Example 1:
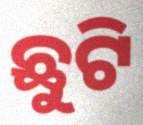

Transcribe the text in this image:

ଛୁଟି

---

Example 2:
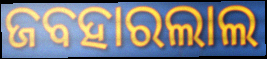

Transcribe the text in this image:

ଜବହାରଲାଲ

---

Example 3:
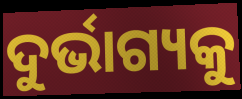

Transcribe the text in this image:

ଦୁର୍ଭାଗ୍ୟକୁ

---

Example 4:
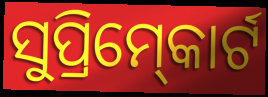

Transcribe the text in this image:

ସୁପ୍ରିମ୍‍କୋର୍ଟ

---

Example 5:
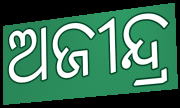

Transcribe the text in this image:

ଅଜୀନ୍ଦ୍ର